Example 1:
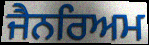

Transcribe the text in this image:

ਜੈਨਰਿਅਮ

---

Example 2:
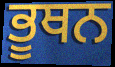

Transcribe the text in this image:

ਭੂਥਨ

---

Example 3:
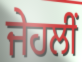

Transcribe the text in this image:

ਜੇਹਲੀਂ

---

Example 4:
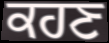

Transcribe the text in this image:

ਕਹਣ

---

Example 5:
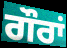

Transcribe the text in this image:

ਗੌਰਾਂ